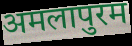
अमलापुरम